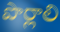
పొర్లాలి